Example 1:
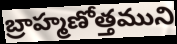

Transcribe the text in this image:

బ్రాహ్మణోత్తముని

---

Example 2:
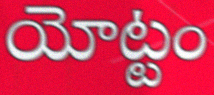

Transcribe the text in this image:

యోట్టం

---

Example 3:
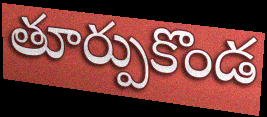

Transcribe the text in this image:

తూర్పుకొండ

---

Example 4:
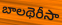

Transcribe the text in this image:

బాలథెరీసా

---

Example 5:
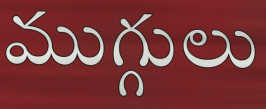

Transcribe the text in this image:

ముగ్గులు